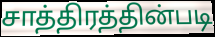
சாத்திரத்தின்படி